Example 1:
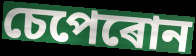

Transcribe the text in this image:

চেপেৰোন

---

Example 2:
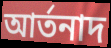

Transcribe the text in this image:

আৰ্তনাদ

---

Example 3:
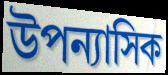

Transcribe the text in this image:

উপন্যাসিক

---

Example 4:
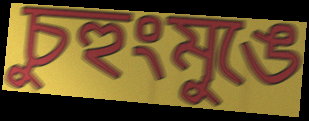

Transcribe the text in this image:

চুহুংমুঙে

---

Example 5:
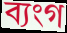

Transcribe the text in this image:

ব্যংগ